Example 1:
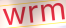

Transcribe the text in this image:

wrm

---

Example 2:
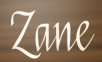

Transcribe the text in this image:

Zane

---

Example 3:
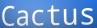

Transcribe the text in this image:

Cactus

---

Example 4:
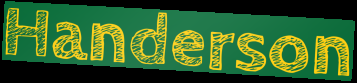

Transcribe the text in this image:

Handerson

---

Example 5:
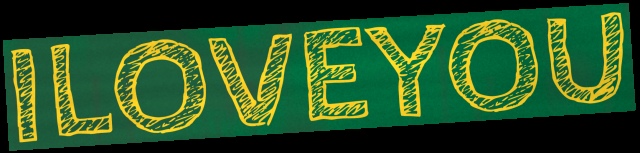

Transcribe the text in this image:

ILOVEYOU